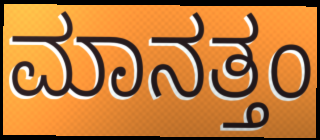
ಮಾನತ್ತಂ